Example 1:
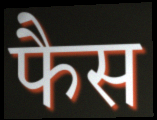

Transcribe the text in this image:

फैस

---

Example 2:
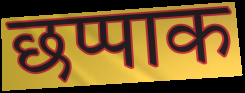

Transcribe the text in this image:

छप्पाक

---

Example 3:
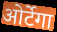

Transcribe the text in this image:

ओर्टेगा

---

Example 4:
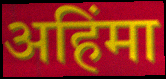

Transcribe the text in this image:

अहिंमा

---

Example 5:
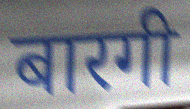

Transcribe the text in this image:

बारगी